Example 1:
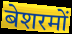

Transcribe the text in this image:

बेशरमों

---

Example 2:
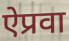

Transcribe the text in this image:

ऐप्रवा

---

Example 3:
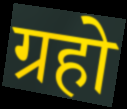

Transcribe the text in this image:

ग्रहो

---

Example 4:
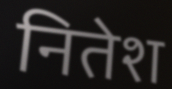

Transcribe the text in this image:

नितेश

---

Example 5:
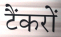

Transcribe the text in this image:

टैंकरों